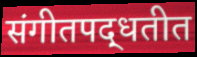
संगीतपद्धतीत